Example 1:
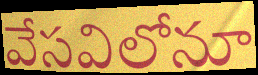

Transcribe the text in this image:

వేసవిలోనూ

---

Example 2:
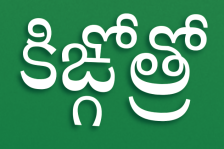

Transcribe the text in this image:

కిఙ్గోత్రో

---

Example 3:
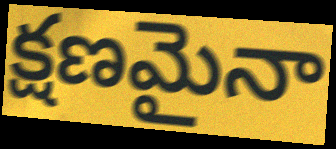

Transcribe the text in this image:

క్షణమైనా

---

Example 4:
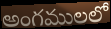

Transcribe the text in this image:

అంగములలో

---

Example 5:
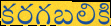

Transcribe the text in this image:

కరగబలికి